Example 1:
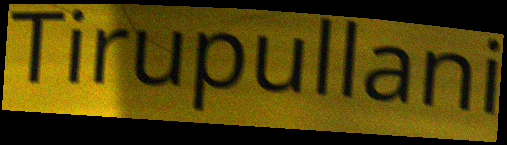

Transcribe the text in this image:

Tirupullani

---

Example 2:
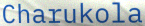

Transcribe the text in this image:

Charukola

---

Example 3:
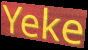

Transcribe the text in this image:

Yeke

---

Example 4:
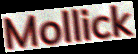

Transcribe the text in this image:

Mollick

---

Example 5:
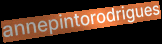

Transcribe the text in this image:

annepintorodrigues